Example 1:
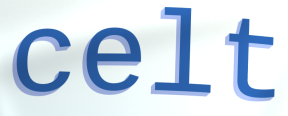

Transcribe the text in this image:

celt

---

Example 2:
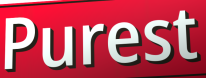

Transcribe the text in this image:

Purest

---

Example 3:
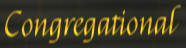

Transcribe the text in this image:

Congregational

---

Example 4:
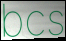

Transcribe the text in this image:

bcs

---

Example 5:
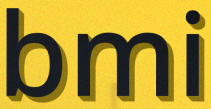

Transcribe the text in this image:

bmi